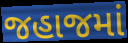
જહાજમાં